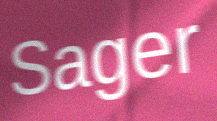
Sager